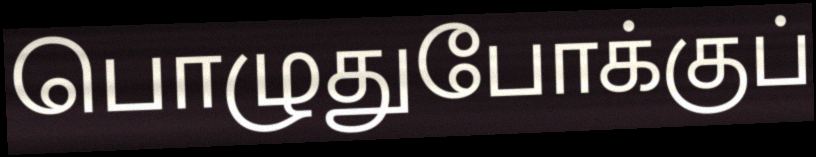
பொழுதுபோக்குப்